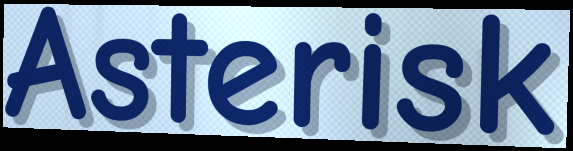
Asterisk